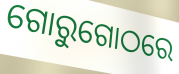
ଗୋରୁଗୋଠରେ